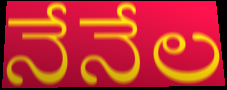
నేనేల